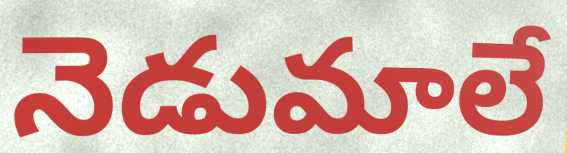
నెడుమాలే